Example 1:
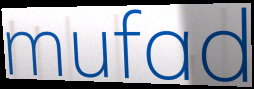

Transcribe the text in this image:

mufad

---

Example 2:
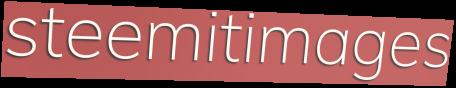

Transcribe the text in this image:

steemitimages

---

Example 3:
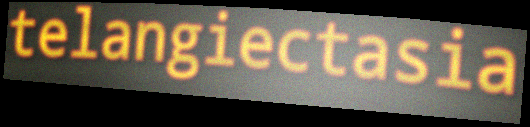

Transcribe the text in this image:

telangiectasia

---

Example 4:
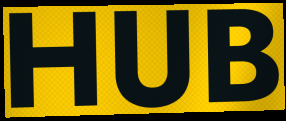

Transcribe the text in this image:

HUB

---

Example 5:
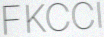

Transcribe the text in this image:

FKCCI